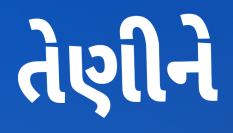
તેણીને